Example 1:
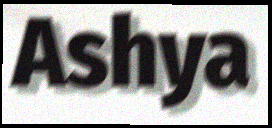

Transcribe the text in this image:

Ashya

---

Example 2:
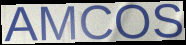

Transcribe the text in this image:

AMCOS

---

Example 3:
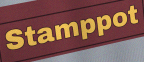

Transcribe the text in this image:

Stamppot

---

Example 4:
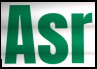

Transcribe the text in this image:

Asr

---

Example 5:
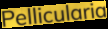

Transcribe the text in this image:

Pellicularia